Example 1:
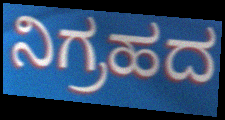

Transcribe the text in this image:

ನಿಗ್ರಹದ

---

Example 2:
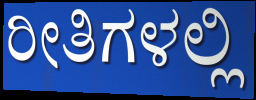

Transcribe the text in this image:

ರೀತಿಗಳಲ್ಲಿ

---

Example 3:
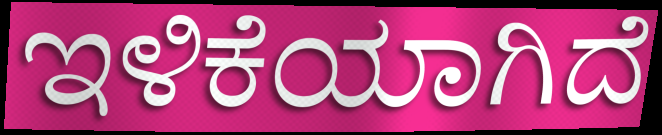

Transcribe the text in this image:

ಇಳಿಕೆಯಾಗಿದೆ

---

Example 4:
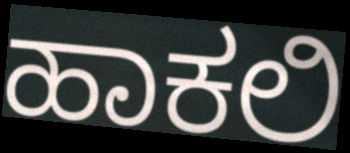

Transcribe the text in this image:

ಹಾಕಲಿ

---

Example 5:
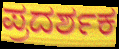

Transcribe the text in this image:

ಪ್ರದರ್ಶಕ